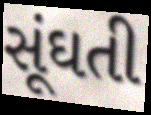
સૂંઘતી